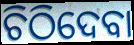
ଚିଠିଦେବା